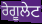
ਰੇਗੂਲੇਟ